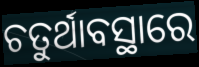
ଚତୁର୍ଥାବସ୍ଥାରେ